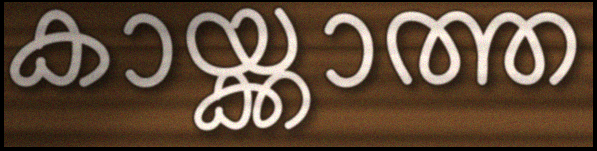
കായ്ക്കാത്ത